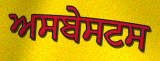
ਅਸਬੇਸਟਸ